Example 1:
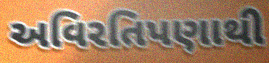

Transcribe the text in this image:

અવિરતિપણાથી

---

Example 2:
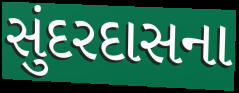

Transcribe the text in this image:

સુંદરદાસના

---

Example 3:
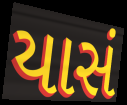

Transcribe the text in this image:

યાસં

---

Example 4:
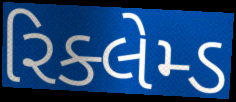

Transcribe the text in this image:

રિક્લેમ્ડ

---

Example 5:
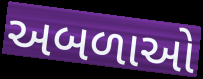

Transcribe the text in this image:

અબળાઓ